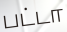
பட்டா